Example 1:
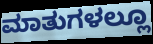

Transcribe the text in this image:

ಮಾತುಗಳಲ್ಲೂ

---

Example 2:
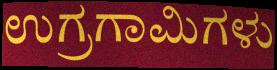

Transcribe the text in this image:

ಉಗ್ರಗಾಮಿಗಳು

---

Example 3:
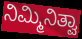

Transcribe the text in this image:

ನಿಮ್ಮಿನಿತ್ವಾ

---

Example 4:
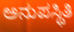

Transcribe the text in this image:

ಅನುಪಸ್ಥಿತಿ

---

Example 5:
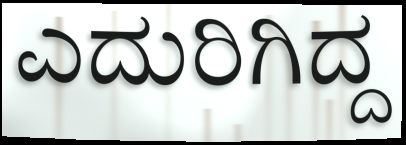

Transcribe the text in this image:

ಎದುರಿಗಿದ್ದ